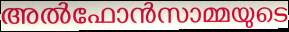
അൽഫോൻസാമ്മയുടെ